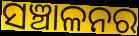
ସଞ୍ଚାଳନର